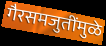
गैरसमजुतींमुळे